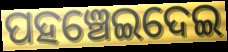
ପହଞ୍ଚେଇଦେଇ